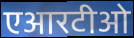
एआरटीओ